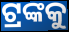
ଟ୍ରଙ୍କକୁ